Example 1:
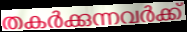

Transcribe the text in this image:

തകർക്കുന്നവർക്ക്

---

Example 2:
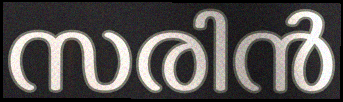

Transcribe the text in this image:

സരിൻ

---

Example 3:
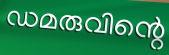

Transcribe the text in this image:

ഡമരുവിന്റെ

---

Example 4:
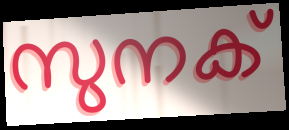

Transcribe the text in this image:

സുനക്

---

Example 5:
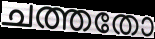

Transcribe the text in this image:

ചത്തതോ